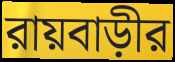
রায়বাড়ীর